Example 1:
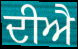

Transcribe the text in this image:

ਦੀਐ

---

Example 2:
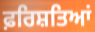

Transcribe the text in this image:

ਫ਼ਰਿਸ਼ਤਿਆਂ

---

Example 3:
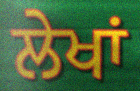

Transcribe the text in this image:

ਲੇਖਾਂ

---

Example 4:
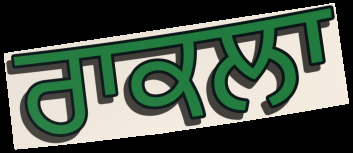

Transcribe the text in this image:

ਰਾਕਲਾ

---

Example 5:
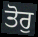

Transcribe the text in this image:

ਤੋਰੁ